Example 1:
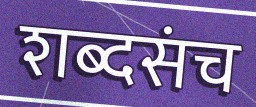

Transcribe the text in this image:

शब्दसंच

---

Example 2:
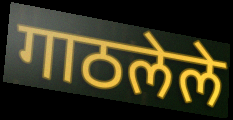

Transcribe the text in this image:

गाठलेले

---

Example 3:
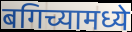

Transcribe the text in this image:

बगिच्यामध्ये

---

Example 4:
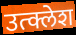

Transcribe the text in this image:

उत्क्लेश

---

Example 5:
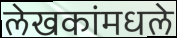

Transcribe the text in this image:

लेखकांमधले